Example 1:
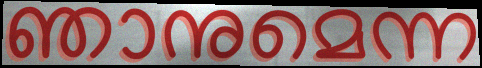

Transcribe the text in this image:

ഞാനുമെന്ന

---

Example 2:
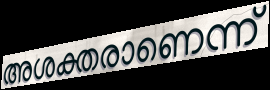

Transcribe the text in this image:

അശക്തരാണെന്ന്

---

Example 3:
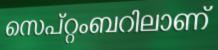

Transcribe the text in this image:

സെപ്റ്റംബറിലാണ്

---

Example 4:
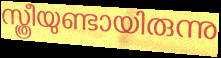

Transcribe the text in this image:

സ്ത്രീയുണ്ടായിരുന്നു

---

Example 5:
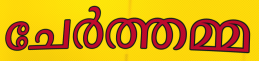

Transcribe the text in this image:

ചേർത്തമ്മ